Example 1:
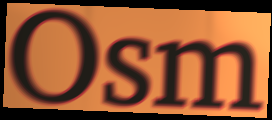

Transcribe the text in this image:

Osm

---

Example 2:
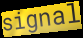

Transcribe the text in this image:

signal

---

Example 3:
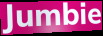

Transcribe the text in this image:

Jumbie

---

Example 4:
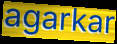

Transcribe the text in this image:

agarkar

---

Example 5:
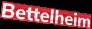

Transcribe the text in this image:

Bettelheim